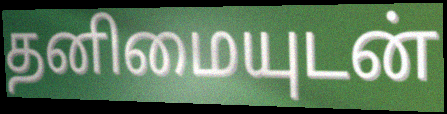
தனிமையுடன்